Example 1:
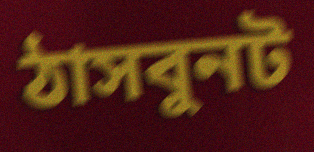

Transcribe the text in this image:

ঠাসবুনট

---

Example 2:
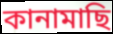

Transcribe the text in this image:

কানামাছি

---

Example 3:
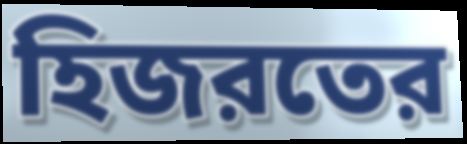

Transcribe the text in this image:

হিজরতের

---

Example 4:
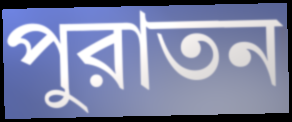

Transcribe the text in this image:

পুরাতন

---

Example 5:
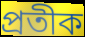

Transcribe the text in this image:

প্রতীক